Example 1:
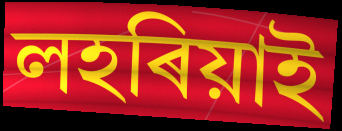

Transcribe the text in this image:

লহৰিয়াই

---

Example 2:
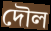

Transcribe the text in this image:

দৌল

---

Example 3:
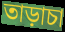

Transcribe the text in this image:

তাড়াচা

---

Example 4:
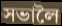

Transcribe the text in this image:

সভালৈ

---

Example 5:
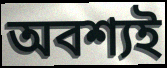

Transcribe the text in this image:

অবশ্যই